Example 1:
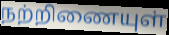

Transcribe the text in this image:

நற்றிணையுள்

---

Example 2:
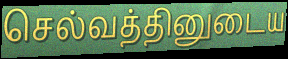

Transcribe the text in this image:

செல்வத்தினுடைய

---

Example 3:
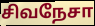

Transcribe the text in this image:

சிவநேசா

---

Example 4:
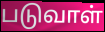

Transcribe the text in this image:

படுவாள்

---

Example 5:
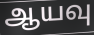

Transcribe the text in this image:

ஆயவு